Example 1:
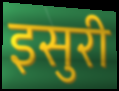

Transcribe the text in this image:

इसुरी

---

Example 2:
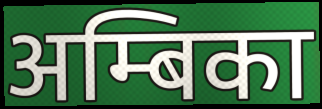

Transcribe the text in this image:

अम्बिका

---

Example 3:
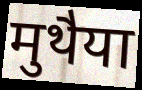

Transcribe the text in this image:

मुथैया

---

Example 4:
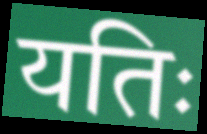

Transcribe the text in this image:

यतिः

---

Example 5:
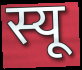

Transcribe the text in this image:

स्यू